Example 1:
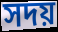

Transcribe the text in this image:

সদয়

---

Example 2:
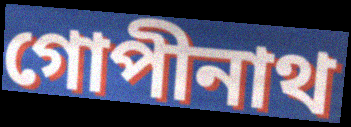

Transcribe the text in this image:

গোপীনাথ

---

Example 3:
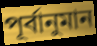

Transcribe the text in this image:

পূৰ্বানুমান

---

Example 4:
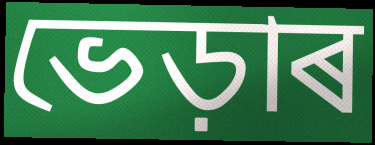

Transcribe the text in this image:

ভেড়াৰ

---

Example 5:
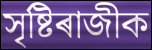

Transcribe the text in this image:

সৃষ্টিৰাজীক